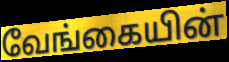
வேங்கையின்